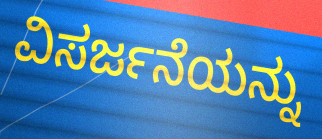
ವಿಸರ್ಜನೆಯನ್ನು